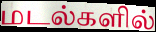
மடல்களில்